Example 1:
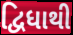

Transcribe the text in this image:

દ્વિધાથી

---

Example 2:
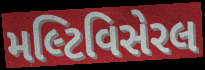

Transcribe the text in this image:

મલ્ટિવિસેરલ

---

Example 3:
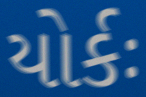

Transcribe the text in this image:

યોર્કઃ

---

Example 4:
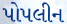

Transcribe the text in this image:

પોપલીન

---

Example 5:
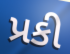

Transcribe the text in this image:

પ્રકી